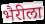
भैरीला